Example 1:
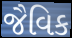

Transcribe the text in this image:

જૈવિક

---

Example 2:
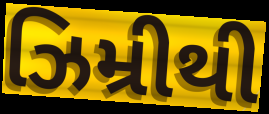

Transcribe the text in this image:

ઝિમ્રીથી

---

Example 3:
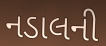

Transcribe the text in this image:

નડાલની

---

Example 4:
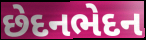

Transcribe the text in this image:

છેદનભેદન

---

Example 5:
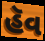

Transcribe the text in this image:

હૅવ